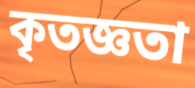
কৃতজ্ঞতা